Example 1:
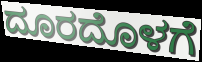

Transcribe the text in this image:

ದೂರದೊಳಗೆ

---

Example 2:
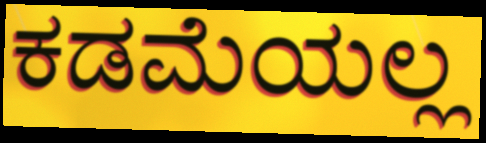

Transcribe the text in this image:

ಕಡಮೆಯಲ್ಲ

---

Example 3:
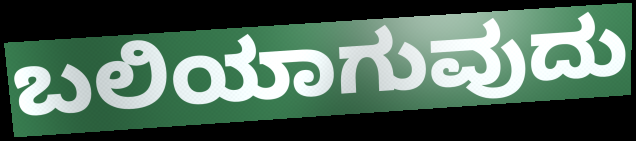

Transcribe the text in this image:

ಬಲಿಯಾಗುವುದು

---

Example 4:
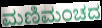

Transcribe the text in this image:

ಮಣಿಮಂಚದ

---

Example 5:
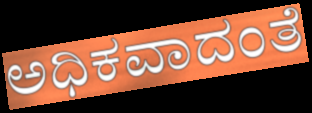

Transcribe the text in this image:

ಅಧಿಕವಾದಂತೆ